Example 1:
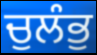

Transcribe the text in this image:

ਚੁਲੰਭੁ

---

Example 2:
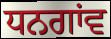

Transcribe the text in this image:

ਧਨਗਾਂਵ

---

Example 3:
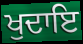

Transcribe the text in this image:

ਖੁਦਾਇ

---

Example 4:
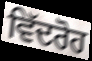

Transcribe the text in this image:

ਵਿੱਦਰੋਹ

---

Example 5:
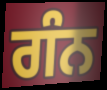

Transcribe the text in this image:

ਗੰਨ